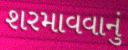
શરમાવવાનું